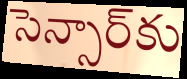
సెన్సార్‌కు